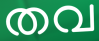
തവ